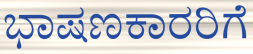
ಭಾಷಣಕಾರರಿಗೆ